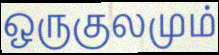
ஒருகுலமும்